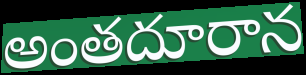
అంతదూరాన